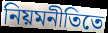
নিয়মনীতিতে